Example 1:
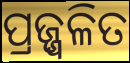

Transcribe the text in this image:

ପ୍ରଜ୍ଜ୍ବଳିତ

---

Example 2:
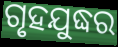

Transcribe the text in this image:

ଗୃହଯୁଦ୍ଧର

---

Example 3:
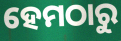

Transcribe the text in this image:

ହେମଠାରୁ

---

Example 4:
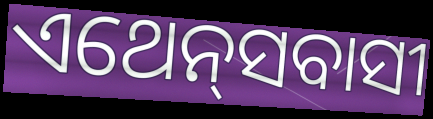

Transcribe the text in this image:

ଏଥେନ୍‌ସବାସୀ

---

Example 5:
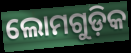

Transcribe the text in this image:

ଲୋମଗୁଡ଼ିକ